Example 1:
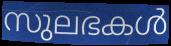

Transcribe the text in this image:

സുലഭകൾ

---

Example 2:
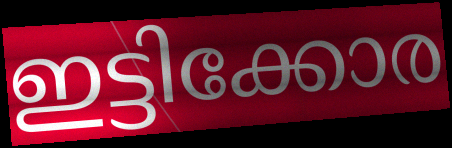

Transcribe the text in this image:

ഇട്ടിക്കോര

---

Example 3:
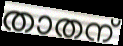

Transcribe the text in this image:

താതന്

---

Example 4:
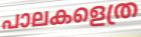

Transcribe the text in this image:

പാലകളെത്ര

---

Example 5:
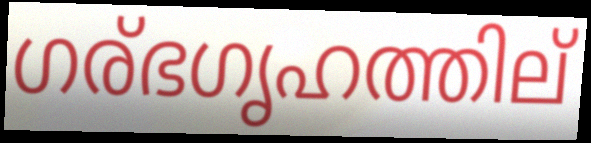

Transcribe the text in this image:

ഗര്ഭഗൃഹത്തില്